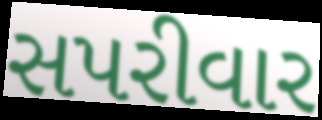
સપરીવાર